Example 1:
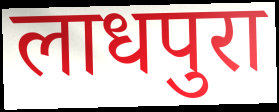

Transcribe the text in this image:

लाधपुरा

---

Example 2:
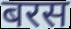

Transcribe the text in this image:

बरस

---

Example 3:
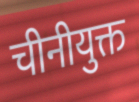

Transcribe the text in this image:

चीनीयुक्त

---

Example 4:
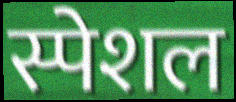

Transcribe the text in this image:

स्‍पेशल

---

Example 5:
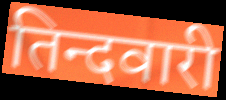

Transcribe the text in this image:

तिन्दवारी